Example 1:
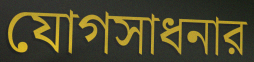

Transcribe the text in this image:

যোগসাধনার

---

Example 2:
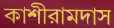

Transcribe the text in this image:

কাশীরামদাস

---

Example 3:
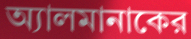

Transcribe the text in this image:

অ্যালমানাকের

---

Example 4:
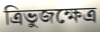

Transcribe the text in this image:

ত্রিভুজক্ষেত্র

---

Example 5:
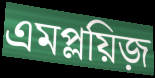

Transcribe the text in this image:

এমপ্লয়িজ়